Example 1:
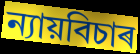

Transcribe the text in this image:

ন্যায়বিচাৰ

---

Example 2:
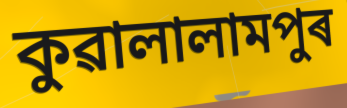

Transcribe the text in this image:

কুৱালালামপুৰ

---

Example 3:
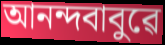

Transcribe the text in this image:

আনন্দবাবুৱে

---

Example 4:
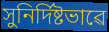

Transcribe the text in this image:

সুনিৰ্দিষ্টভাৱে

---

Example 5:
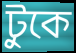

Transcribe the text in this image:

টুকে